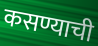
कसण्याची